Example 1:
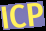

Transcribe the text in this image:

ICP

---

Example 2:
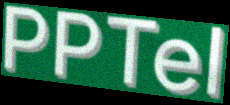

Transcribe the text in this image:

PPTel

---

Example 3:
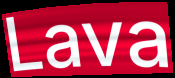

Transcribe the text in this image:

Lava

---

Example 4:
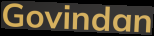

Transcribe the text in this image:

Govindan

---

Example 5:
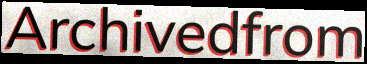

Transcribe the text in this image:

Archivedfrom